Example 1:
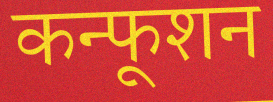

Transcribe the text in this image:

कन्फूशन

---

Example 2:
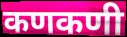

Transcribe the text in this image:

कणकणी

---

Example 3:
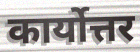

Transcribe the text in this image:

कार्योत्तर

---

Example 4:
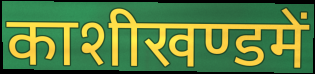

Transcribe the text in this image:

काशीखण्डमें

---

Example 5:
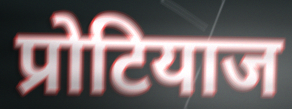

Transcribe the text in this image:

प्रोटियाज